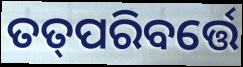
ତତ୍‌ପରିବର୍ତ୍ତେ